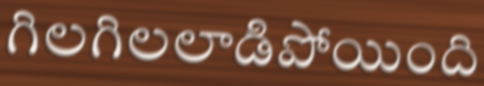
గిలగిలలాడిపోయింది